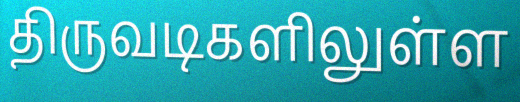
திருவடிகளிலுள்ள